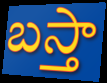
బస్తా